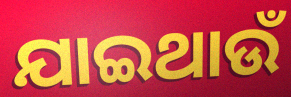
ଯାଇଥାଉଁ